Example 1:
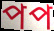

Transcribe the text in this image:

পপ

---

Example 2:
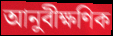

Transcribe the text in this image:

আনুবীক্ষণিক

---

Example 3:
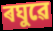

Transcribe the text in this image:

ৰঘুৱে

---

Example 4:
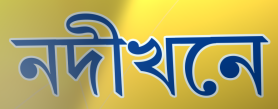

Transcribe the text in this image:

নদীখনে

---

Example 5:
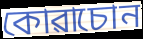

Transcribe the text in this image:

কোৱাচোন